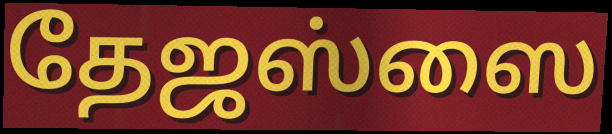
தேஜஸ்ஸை